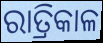
ରାତ୍ରିକାଳ